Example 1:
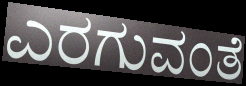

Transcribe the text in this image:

ಎರಗುವಂತೆ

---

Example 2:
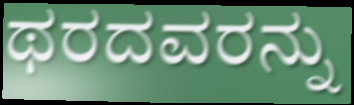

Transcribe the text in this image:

ಥರದವರನ್ನು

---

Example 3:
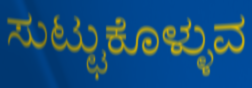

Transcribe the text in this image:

ಸುಟ್ಟುಕೊಳ್ಳುವ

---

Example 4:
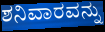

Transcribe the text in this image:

ಶನಿವಾರವನ್ನು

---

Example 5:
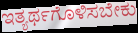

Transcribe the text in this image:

ಇತ್ಯರ್ಥಗೊಳಿಸಬೇಕು